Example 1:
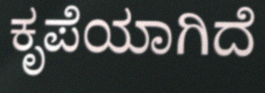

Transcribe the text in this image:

ಕೃಪೆಯಾಗಿದೆ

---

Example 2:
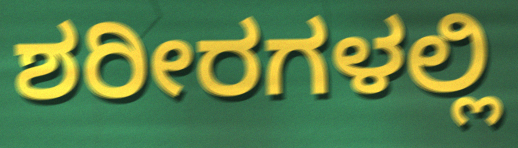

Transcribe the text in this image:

ಶರೀರಗಳಲ್ಲಿ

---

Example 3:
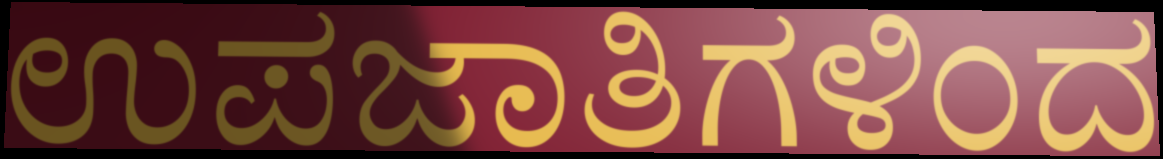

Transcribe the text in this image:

ಉಪಜಾತಿಗಳಿಂದ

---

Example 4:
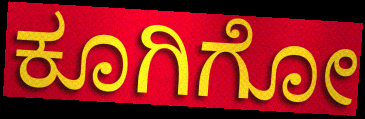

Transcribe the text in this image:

ಕೂಗಿಗೋ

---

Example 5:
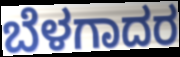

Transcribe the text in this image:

ಬೆಳಗಾದರ